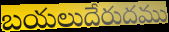
బయలుదేరుదము